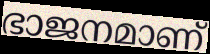
ഭാജനമാണ്